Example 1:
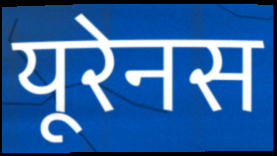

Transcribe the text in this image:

यूरेनस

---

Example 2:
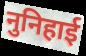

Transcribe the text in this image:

नुनिहाई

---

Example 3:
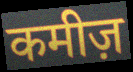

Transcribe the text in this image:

कमीज़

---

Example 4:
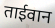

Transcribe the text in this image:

ताईवान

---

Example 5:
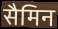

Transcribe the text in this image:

सैमिन